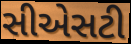
સીએસટી